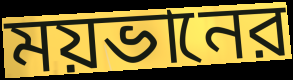
ময়ভানের